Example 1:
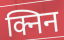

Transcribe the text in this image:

क्निन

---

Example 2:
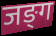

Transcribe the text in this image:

जङ्ग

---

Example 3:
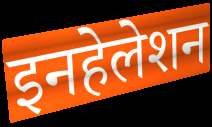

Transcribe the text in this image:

इनहेलेशन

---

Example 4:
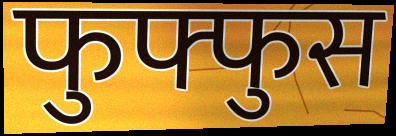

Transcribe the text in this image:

फुफ्फुस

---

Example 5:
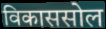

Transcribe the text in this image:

विकाससोल